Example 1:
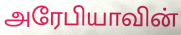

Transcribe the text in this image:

அரேபியாவின்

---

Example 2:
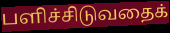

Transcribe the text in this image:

பளிச்சிடுவதைக்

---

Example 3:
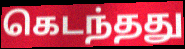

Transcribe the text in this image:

கெடந்தது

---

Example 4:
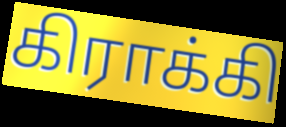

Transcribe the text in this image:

கிராக்கி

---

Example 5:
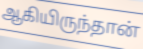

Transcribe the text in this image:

ஆகியிருந்தான்